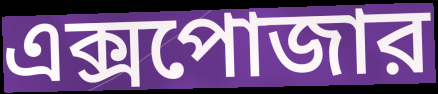
এক্সপোজার